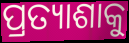
ପ୍ରତ୍ୟାଶାକୁ